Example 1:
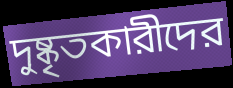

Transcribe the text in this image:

দুষ্কৃতকারীদের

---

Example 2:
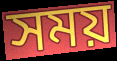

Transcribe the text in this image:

সময়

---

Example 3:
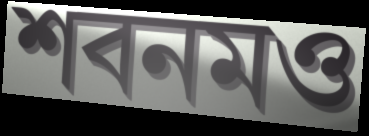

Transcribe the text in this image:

শবনমও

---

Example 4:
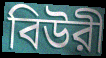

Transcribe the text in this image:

বিউরী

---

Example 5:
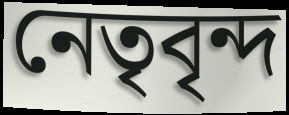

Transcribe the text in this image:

নেতৃবৃন্দ